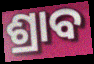
ଶ୍ରାବ